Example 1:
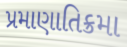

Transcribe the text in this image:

પ્રમાણાતિક્રમા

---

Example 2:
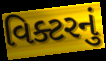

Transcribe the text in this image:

વિક્ટરનું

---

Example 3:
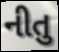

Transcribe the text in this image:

નીતુ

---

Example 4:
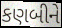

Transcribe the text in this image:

કણબીને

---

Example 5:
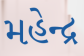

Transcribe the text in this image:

મહેન્દ્ર